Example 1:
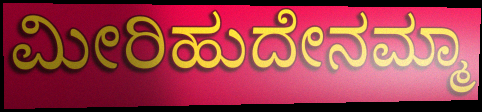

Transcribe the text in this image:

ಮೀರಿಹುದೇನಮ್ಮಾ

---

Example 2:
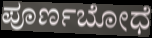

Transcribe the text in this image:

ಪೂರ್ಣಬೋಧೆ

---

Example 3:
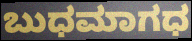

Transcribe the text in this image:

ಬುಧಮಾಗಧ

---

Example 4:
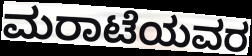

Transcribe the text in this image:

ಮರಾಟೆಯವರ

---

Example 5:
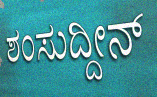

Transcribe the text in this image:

ಶಂಸುದ್ದೀನ್